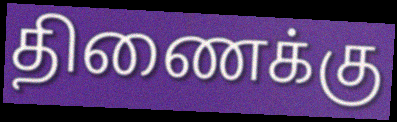
திணைக்கு